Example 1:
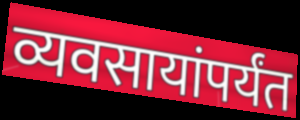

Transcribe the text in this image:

व्यवसायांपर्यंत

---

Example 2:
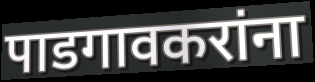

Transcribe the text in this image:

पाडगावकरांना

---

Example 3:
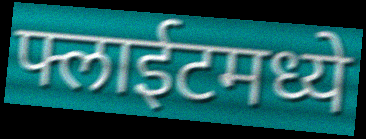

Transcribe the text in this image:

फ्लाईटमध्ये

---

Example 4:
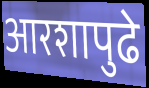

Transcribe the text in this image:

आरशापुढे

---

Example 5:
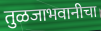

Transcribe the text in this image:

तुळजाभवानीचा